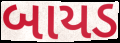
બાયડ